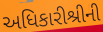
અધિકારીશ્રીની